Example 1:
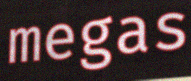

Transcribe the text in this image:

megas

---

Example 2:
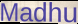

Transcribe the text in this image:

Madhu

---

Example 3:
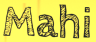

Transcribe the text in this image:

Mahi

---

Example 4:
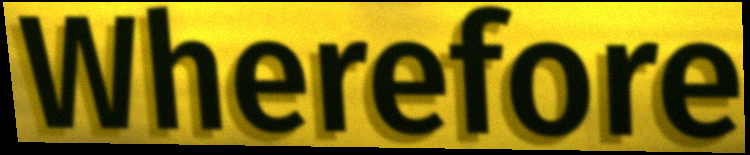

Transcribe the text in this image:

Wherefore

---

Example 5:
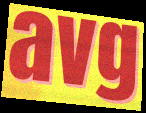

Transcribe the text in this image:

avg